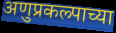
अणुप्रकल्पाच्या